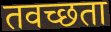
तवच्छता